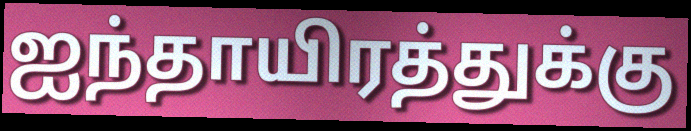
ஐந்தாயிரத்துக்கு